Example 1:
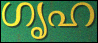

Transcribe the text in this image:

ഗൃഹ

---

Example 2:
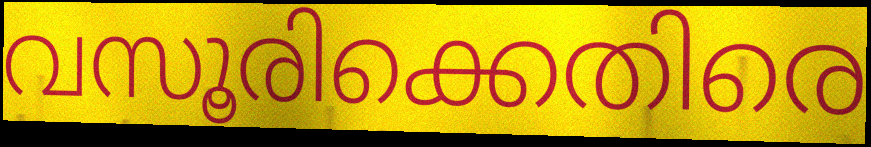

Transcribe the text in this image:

വസൂരിക്കെതിരെ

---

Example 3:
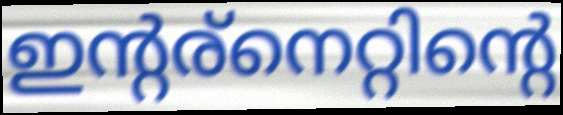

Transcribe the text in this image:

ഇന്റര്നെറ്റിന്റെ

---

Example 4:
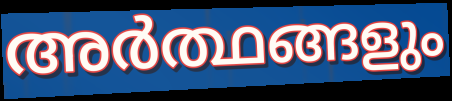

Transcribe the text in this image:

അർത്ഥങ്ങളും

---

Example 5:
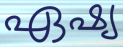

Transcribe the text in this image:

ഏഷ്യ